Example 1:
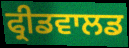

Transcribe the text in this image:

ਫ੍ਰੀਡਵਾਲਡ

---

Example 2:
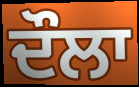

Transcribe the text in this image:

ਦੌਲਾ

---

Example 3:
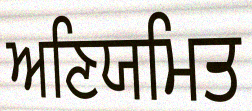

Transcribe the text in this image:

ਅਣਿਯਮਿਤ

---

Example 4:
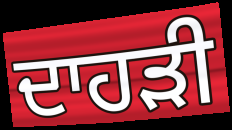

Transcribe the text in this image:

ਦਾਹੜੀ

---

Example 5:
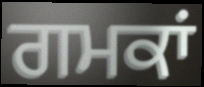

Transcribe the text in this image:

ਗਮਕਾਂ